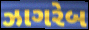
ઝાગરેબ